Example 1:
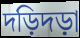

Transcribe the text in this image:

দড়িদড়া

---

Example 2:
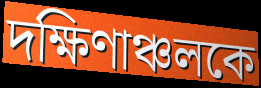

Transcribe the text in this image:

দক্ষিণাঞ্চলকে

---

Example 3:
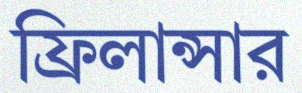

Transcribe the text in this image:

ফ্রিলান্সার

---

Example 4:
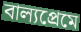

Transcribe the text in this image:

বাল্যপ্রেমে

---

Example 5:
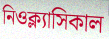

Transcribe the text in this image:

নিওক্ল্যাসিকাল